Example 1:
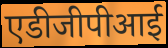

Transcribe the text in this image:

एडीजीपीआई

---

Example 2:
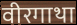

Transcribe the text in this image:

वीरगाथा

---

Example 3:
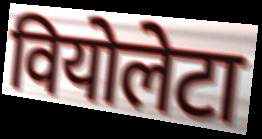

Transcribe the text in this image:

वियोलेटा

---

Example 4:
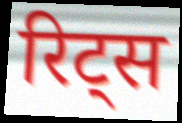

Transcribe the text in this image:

रिट्स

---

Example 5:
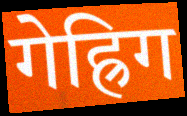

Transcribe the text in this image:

गेह्रिग